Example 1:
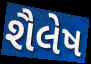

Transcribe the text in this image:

શૈલેષ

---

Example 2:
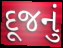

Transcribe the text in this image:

દૂજનું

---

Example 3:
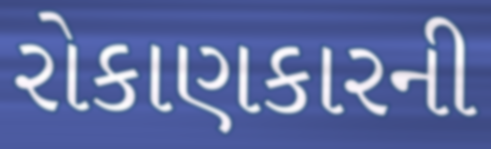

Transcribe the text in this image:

રોકાણકારની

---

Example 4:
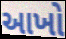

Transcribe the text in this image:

આખો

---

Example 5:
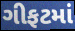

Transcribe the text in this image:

ગીફટમાં